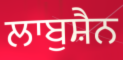
ਲਾਬੁਸ਼ੈਨ